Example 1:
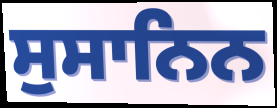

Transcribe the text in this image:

ਸੁਸਾਨਿਨ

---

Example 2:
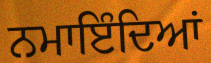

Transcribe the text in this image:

ਨਮਾਇੰਦਿਆਂ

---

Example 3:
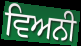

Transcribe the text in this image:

ਵਿਅਨੀ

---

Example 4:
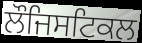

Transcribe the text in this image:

ਲੌਜਿਸਟਿਕਲ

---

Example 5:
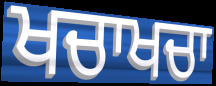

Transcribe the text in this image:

ਖਚਾਖਚਾ